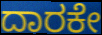
ದಾರಕೇ